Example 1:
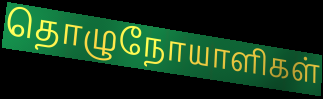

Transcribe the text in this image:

தொழுநோயாளிகள்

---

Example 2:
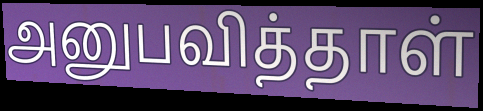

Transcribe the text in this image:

அனுபவித்தாள்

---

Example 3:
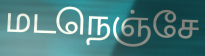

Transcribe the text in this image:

மடநெஞ்சே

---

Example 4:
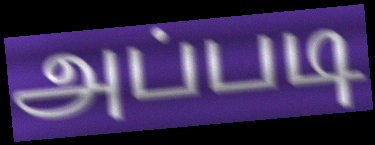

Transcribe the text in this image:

அப்படி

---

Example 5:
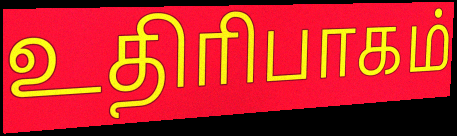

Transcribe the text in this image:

உதிரிபாகம்